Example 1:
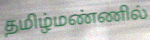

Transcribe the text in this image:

தமிழ்மண்ணில்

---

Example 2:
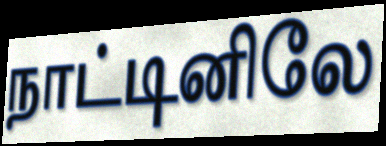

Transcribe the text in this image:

நாட்டினிலே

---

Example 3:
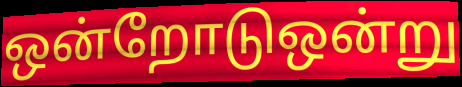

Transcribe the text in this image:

ஒன்றோடுஒன்று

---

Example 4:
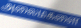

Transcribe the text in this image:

அலைமகளை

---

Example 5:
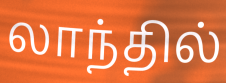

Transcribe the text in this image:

லாந்தில்